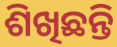
ଶିଖିଛନ୍ତି